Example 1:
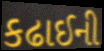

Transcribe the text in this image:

કઢાઈની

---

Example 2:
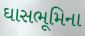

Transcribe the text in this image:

ઘાસભૂમિના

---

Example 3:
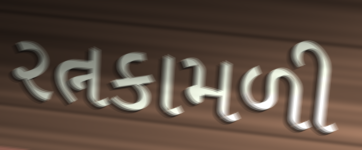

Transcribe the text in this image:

રત્નકામળી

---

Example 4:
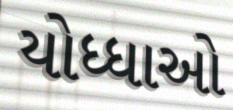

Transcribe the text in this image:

યોધ્ધાઓ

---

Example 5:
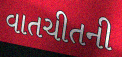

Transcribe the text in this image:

વાતચીતની